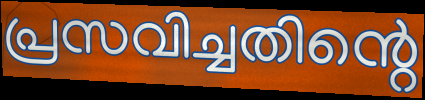
പ്രസവിച്ചതിന്റെ